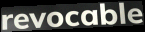
revocable